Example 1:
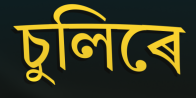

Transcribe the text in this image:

চুলিৰে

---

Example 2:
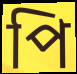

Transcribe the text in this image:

পি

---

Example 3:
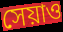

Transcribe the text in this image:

সেয়াও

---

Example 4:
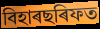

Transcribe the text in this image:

বিহাৰছৰিফত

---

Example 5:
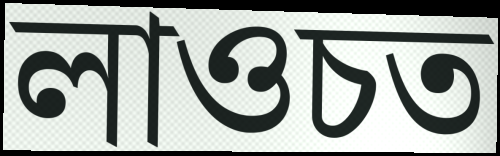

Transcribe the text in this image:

লাওচত